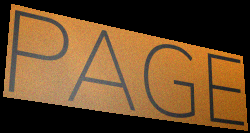
PAGE